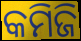
କମିଜି